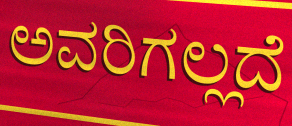
ಅವರಿಗಲ್ಲದೆ